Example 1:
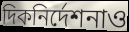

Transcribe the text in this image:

দিকনির্দেশনাও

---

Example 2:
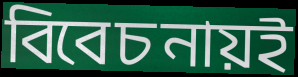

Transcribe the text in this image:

বিবেচনায়ই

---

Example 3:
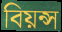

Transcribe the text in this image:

বিয়ন্স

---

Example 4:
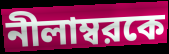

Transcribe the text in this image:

নীলাম্বরকে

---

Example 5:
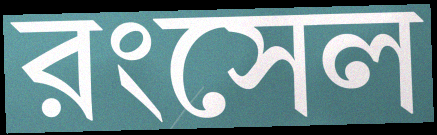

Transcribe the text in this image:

রংসেল